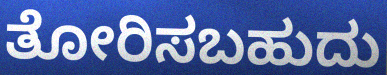
ತೋರಿಸಬಹುದು